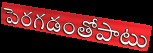
పెరగడంతోపాటు